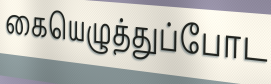
கையெழுத்துப்போட